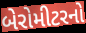
બેરોમીટરનો